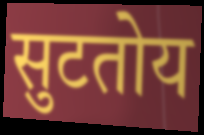
सुटतोय